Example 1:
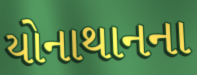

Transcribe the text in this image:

યોનાથાનના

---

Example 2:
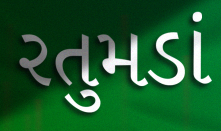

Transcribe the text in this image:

રતુમડાં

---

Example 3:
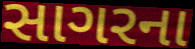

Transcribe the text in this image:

સાગરના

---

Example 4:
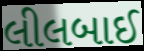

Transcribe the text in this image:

લીલબાઈ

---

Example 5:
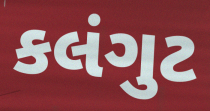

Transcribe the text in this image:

કલંગુટ